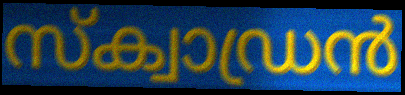
സ്ക്വാഡ്രൻ